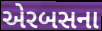
એરબસના